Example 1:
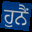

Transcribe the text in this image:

ਹੁਨੈਂ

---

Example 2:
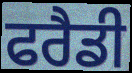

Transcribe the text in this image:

ਫਰੈਡੀ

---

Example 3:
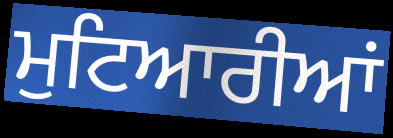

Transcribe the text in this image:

ਮੁਟਿਆਰੀਆਂ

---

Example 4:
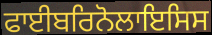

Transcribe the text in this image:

ਫਾਈਬਰਿਨੋਲਾਇਸਿਸ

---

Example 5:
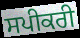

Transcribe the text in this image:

ਸਪੀਕਰੀ